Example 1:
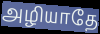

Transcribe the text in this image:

அழியாதே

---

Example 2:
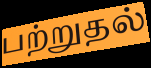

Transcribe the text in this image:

பற்றுதல்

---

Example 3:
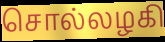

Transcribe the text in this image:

சொல்லழகி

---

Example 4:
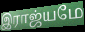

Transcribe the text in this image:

இராஜ்யமே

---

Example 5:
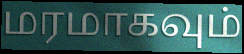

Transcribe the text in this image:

மரமாகவும்